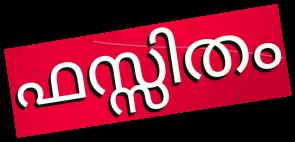
ഫസ്സിതം